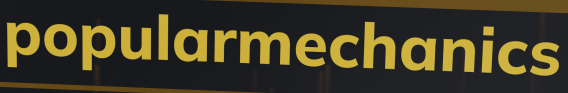
popularmechanics